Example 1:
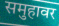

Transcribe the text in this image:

समुहावर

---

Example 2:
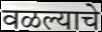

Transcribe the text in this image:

वळल्याचे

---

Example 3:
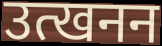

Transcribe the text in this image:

उत्‍खनन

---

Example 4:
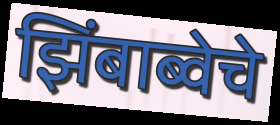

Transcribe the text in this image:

झिंबाब्वेचे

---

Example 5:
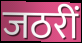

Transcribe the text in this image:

जठरीं